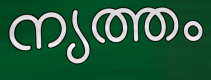
ന്യത്തം